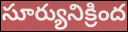
సూర్యునిక్రింద